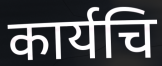
कार्यचि